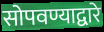
सोपवण्याद्वारे